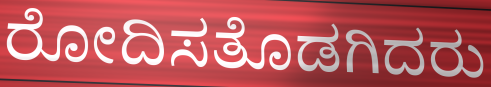
ರೋದಿಸತೊಡಗಿದರು